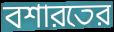
বশারতের